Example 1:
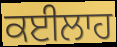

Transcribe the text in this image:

ਕਈਲਾਹ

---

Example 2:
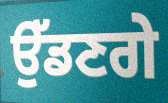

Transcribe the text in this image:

ਉੱਡਣਗੇ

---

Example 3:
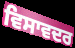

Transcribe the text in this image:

ਵਿਸਾਵਦਰ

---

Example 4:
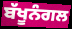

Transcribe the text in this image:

ਬੱਖੂਨੰਗਲ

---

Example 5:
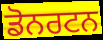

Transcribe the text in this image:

ਡੋਨਰਟਨ